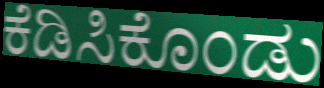
ಕೆಡಿಸಿಕೊಂಡು